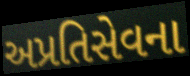
અપ્રતિસેવના